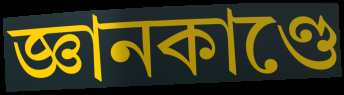
জ্ঞানকাণ্ডে